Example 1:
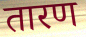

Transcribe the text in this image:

तारण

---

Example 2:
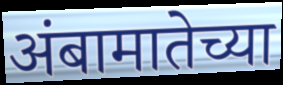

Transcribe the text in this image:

अंबामातेच्या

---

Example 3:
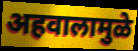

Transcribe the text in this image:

अहवालामुळे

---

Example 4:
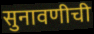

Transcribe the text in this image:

सुनावणीची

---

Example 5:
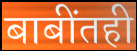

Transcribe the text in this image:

बाबींतही